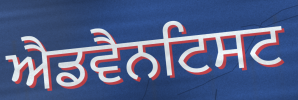
ਐਡਵੈਨਟਿਸਟ